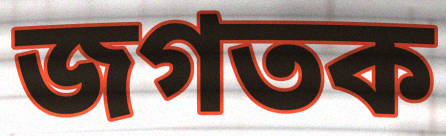
জগতক